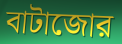
বাটাজোর